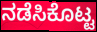
ನಡೆಸಿಕೊಟ್ಟ